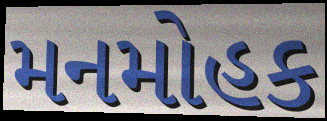
મનમોહક